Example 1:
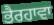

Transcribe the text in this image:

ਭੈਰਹਾਵਾ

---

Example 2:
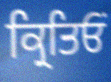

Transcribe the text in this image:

ਕ੍ਰਿਤਿਓਂ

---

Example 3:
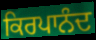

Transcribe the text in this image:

ਕਿਰਪਾਨੰਦ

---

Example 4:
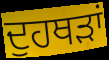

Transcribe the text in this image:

ਦੁਹਥੜਾਂ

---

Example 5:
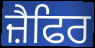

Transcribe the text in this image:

ਜ਼ੈਫਿਰ